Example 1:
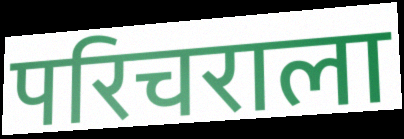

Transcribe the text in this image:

परिचराला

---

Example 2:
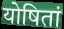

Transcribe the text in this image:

योषितां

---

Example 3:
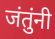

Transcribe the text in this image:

जंतुंनी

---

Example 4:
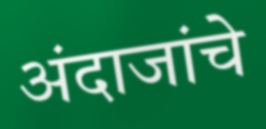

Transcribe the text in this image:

अंदाजांचे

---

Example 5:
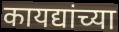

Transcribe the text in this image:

कायद्यांच्या